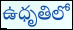
ఉధృతిలో